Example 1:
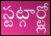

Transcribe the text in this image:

స్టట్గార్ట్లో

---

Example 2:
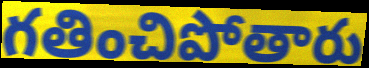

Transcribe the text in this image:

గతించిపోతారు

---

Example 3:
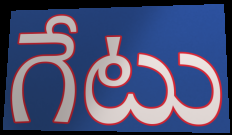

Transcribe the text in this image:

గేటు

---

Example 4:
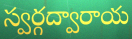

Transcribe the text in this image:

స్వర్గద్వారాయ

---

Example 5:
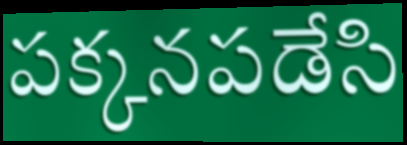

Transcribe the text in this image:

పక్కనపడేసి